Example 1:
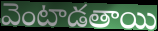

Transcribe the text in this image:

వెంటాడతాయి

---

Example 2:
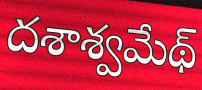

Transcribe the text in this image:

దశాశ్వమేథ్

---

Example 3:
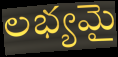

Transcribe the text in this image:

లభ్యమై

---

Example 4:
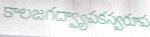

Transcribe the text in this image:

కాలజగద్వ్యాపకస్వరూప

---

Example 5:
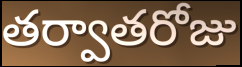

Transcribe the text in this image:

తర్వాతరోజు